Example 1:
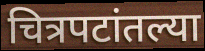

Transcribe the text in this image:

चित्रपटांतल्या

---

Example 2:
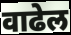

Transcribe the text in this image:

वाढेल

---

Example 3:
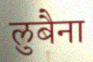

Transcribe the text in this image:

लुबैना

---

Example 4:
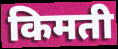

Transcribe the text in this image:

किमती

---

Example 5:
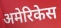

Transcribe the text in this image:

अमेरिकेस